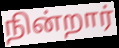
நின்றார்